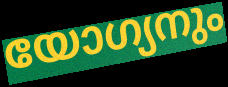
യോഗ്യനും